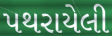
પથરાયેલી